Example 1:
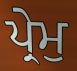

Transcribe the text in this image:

ਪ੍ਰੇਮੁ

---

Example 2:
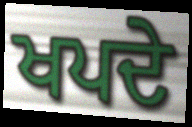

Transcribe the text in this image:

ਖਪਦੇ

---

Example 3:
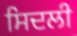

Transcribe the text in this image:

ਸਿਦਲੀ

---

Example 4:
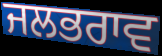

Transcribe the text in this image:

ਜਲਭਰਾਵ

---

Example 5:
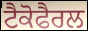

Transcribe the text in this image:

ਟੈਕੋਫੈਰਲ